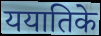
ययातिके